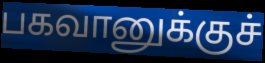
பகவானுக்குச்